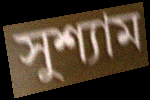
সুশ্যাম